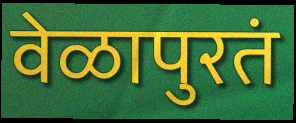
वेळापुरतं